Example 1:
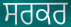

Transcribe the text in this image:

ਸਰਕਰ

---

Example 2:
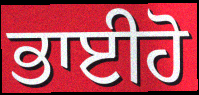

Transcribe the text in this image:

ਭਾਈਹੋ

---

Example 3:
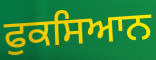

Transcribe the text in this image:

ਫੁਕਸਿਆਨ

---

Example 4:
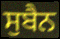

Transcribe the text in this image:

ਸੁਬੈਨ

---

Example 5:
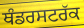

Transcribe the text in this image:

ਥੰਡਰਸਟਰੱਕ